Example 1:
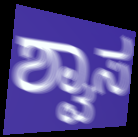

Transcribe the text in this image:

ಶ್ವಾಸ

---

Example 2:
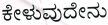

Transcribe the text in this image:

ಕೇಳುವುದೇನು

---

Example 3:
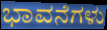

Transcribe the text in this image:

ಭಾವನೆಗಳು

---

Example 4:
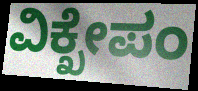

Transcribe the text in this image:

ವಿಕ್ಖೇಪಂ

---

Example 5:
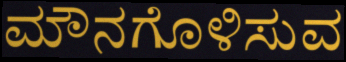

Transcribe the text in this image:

ಮೌನಗೊಳಿಸುವ